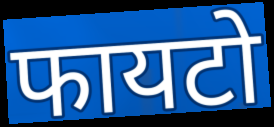
फायटो